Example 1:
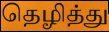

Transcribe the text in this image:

தெழித்து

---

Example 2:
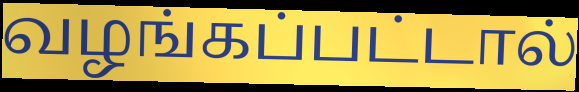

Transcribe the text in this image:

வழங்கப்பட்டால்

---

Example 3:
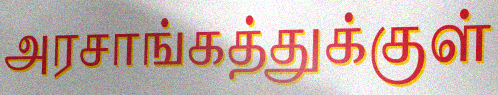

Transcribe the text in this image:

அரசாங்கத்துக்குள்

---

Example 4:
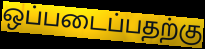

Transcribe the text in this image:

ஒப்படைப்பதற்கு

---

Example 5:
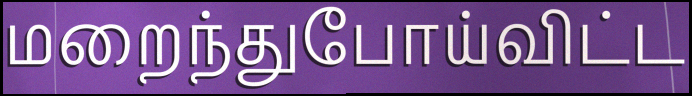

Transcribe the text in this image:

மறைந்துபோய்விட்ட